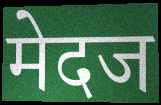
मेदज